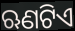
ଋଣଟିଏ